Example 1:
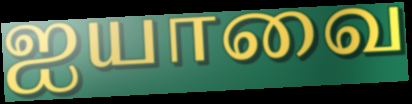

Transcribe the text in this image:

ஐயாவை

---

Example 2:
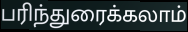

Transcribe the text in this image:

பரிந்துரைக்கலாம்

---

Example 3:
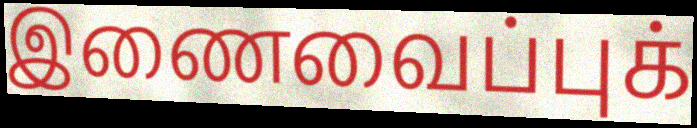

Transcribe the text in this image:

இணைவைப்புக்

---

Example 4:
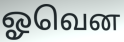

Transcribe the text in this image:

ஓவென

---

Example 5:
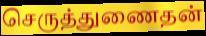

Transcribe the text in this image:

செருத்துணைதன்